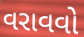
વરાવવો